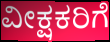
ವೀಕ್ಷಕರಿಗೆ